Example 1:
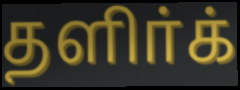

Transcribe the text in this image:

தளிர்க்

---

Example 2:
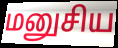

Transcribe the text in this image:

மனுசிய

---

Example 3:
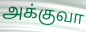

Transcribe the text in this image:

அக்குவா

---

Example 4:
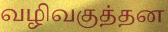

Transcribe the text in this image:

வழிவகுத்தன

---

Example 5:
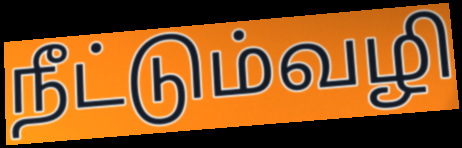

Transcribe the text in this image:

நீட்டும்வழி